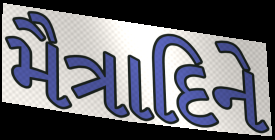
મૈત્રાદિને